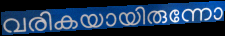
വരികയായിരുന്നോ